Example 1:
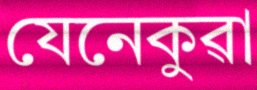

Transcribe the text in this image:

যেনেকুৱা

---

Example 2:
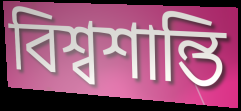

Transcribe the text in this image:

বিশ্বশান্তি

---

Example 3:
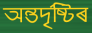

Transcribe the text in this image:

অন্তৰ্দৃষ্টিৰ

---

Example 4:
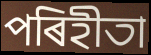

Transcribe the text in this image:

পৰিহীতা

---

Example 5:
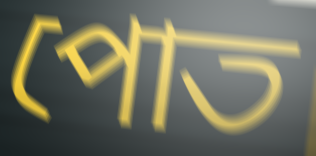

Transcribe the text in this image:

পোত